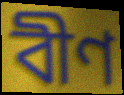
বীণ